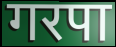
गरपा